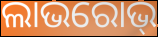
ଲାଭରୋଭ୍